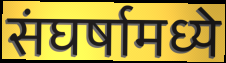
संघर्षामध्ये